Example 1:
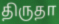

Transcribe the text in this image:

திருதா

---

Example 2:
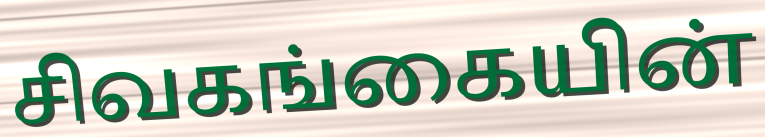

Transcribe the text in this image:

சிவகங்கையின்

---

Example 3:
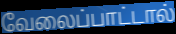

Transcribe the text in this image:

வேலைப்பாட்டால்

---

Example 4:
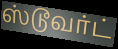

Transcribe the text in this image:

ஸ்டூவர்ட்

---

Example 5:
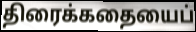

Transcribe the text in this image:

திரைக்கதையைப்